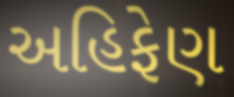
અહિફેણ